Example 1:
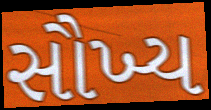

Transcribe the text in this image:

સૌખ્ય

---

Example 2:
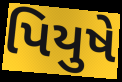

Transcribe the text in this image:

પિયુષે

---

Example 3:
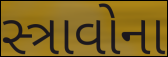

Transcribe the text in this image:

સ્ત્રાવોના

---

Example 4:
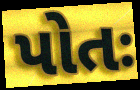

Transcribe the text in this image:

પોતઃ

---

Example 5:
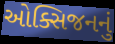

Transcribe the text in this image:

ઓક્સિજનનું